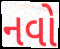
નવો